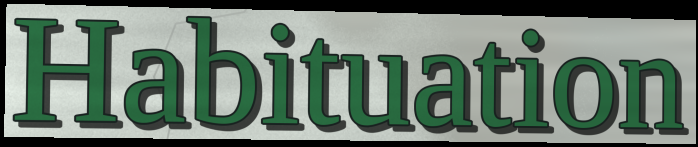
Habituation